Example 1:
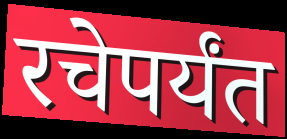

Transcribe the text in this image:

रचेपर्यंत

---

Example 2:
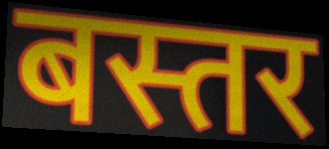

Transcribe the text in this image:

बस्तर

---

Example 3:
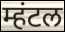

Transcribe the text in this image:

म्हंटल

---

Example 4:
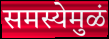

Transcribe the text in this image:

समस्येमुळं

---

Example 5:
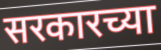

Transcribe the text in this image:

सरकारच्या